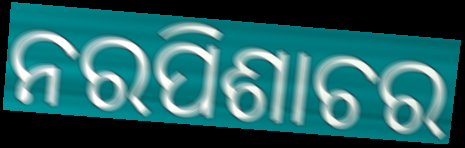
ନରପିଶାଚର